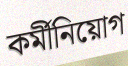
কর্মীনিয়োগ